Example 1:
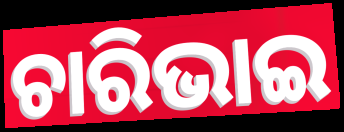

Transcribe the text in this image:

ଚାରିଭାଇ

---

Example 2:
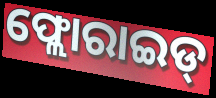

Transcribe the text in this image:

ଫ୍ଲୋରାଇଡ୍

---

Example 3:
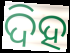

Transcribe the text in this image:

ଦିହ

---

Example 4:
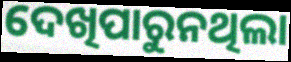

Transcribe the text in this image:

ଦେଖିପାରୁନଥିଲା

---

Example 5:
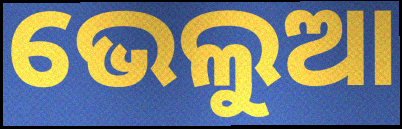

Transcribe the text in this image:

ଭେଲୁଆ